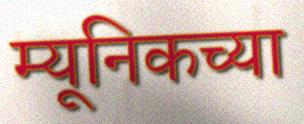
म्यूनिकच्या